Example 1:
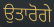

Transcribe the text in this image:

ਉਤਾਰੋਗੇ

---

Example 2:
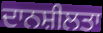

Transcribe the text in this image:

ਦਾਨਸ਼ੀਲਤਾ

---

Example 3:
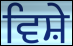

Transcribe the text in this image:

ਵਿਸ਼ੇ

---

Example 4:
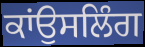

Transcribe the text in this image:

ਕਾਂਉਸਲਿੰਗ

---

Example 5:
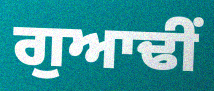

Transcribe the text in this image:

ਗੁਆਢੀਂ